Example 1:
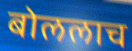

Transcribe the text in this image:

बोललाच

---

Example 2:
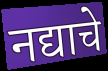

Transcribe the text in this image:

नद्याचे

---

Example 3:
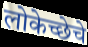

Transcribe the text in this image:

लोकेच्छेचे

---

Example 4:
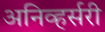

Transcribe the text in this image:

अनिव्हर्सरी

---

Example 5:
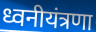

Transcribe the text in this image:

ध्वनीयंत्रणा